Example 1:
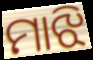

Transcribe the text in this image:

ମାଝି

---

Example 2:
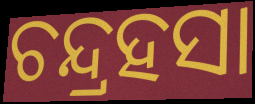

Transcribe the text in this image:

ଚନ୍ଦ୍ରହସା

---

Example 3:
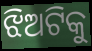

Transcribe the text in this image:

ଝିଅଟିକୁ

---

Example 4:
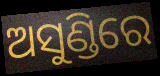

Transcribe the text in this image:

ଅସୁଣ୍ଡିରେ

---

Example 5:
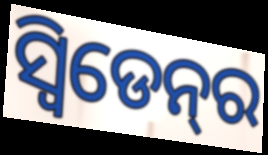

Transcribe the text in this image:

ସ୍ୱିଡେନ୍‌ର